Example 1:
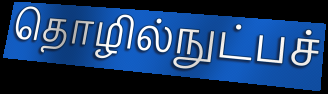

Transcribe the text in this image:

தொழில்நுட்பச்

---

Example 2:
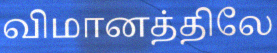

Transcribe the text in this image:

விமானத்திலே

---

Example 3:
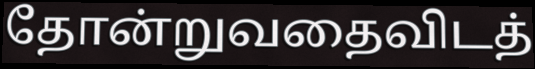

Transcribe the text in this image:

தோன்றுவதைவிடத்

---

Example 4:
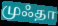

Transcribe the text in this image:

முஃதா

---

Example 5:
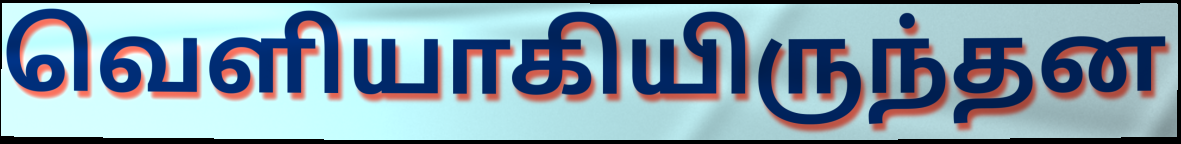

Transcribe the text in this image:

வெளியாகியிருந்தன